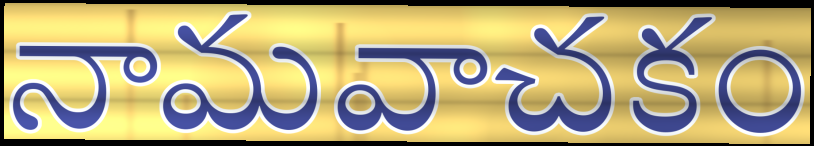
నామవాచకం